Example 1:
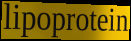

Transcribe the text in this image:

lipoprotein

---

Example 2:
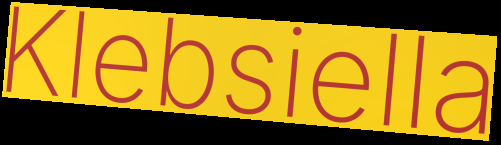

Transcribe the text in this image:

Klebsiella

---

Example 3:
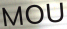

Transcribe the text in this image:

MOU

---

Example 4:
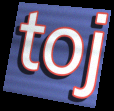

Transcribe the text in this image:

toj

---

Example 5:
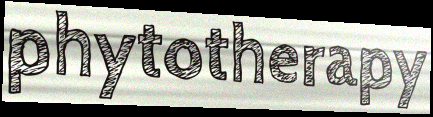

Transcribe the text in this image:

phytotherapy